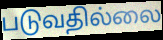
படுவதில்லை